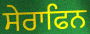
ਸੇਰਾਫਿਨ